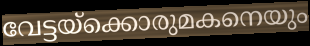
വേട്ടയ്ക്കൊരുമകനെയും